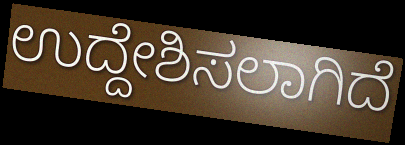
ಉದ್ದೇಶಿಸಲಾಗಿದೆ